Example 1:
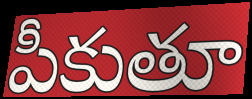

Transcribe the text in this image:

పీకుతూ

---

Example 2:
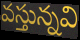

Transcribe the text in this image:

వస్తున్నవి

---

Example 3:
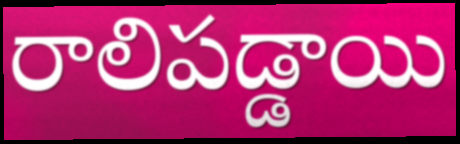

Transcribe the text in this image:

రాలిపడ్డాయి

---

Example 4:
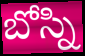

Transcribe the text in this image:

బోస్ని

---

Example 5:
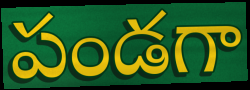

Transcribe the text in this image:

పండగా